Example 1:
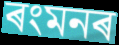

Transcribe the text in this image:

ৰংমনৰ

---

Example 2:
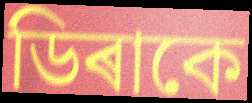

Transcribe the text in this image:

ডিৰাকে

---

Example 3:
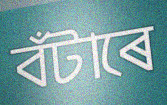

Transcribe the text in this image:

বঁটাৰে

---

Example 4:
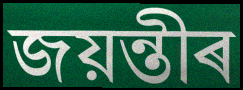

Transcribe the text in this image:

জয়ন্তীৰ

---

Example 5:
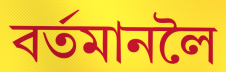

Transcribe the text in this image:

বৰ্তমানলৈ